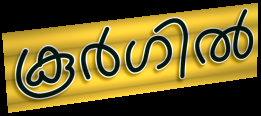
കൂർഗിൽ